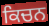
ਕਿਚਨ